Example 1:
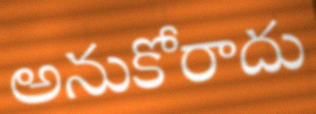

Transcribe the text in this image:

అనుకోరాదు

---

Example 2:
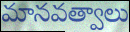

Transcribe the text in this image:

మానవత్వాలు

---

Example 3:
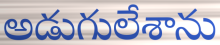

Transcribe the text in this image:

అడుగులేశాను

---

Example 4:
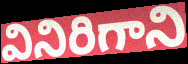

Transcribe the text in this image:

వినిరిగాని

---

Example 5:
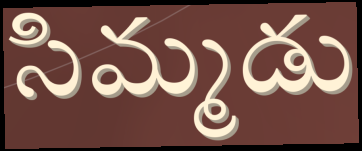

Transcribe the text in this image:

సిమ్మడు